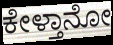
ಕೇಳ್ತಾನೋ